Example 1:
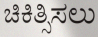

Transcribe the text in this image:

ಚಿಕಿತ್ಸಿಸಲು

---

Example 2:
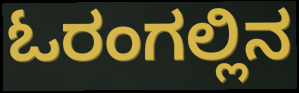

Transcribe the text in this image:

ಓರಂಗಲ್ಲಿನ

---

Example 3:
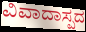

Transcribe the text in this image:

ವಿವಾದಾಸ್ಪದ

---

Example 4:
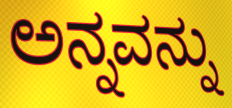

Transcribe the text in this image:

ಅನ್ನವನ್ನು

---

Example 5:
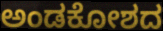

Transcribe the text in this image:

ಅಂಡಕೋಶದ